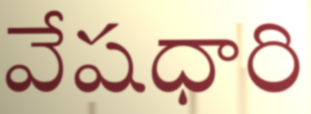
వేషధారి